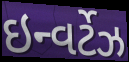
ઇન્વર્ટેઝ